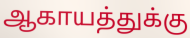
ஆகாயத்துக்கு